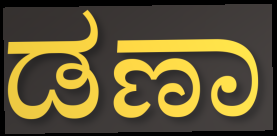
ಡಣಾ